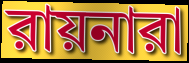
রায়নারা